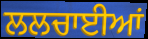
ਲਲਚਾਈਆਂ